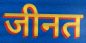
जीनत